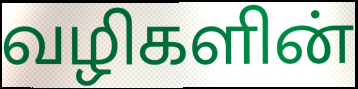
வழிகளின்